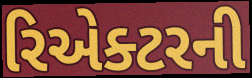
રિએક્ટરની